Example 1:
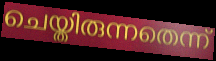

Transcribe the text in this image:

ചെയ്തിരുന്നതെന്ന്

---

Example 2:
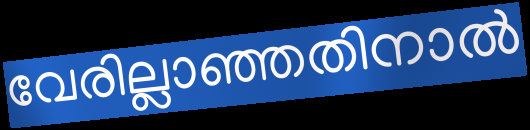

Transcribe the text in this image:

വേരില്ലാഞ്ഞതിനാൽ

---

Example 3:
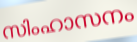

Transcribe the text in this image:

സിംഹാസനം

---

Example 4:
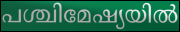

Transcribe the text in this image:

പശ്ചിമേഷ്യയിൽ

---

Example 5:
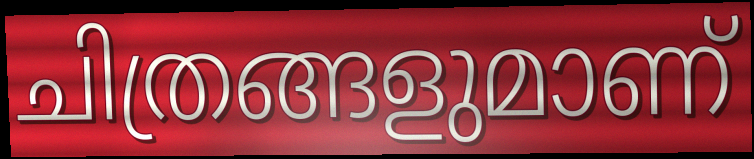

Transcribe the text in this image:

ചിത്രങ്ങളുമാണ്